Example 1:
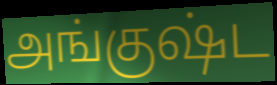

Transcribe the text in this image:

அங்குஷ்ட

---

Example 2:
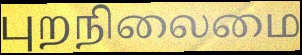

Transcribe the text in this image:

புறநிலைமை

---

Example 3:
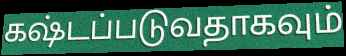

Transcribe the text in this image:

கஷ்டப்படுவதாகவும்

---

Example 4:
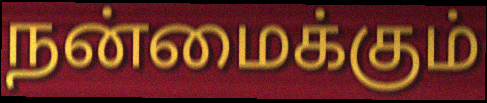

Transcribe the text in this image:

நன்மைக்கும்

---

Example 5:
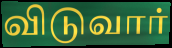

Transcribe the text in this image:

விடுவார்